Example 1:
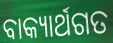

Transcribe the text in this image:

ବାକ୍ୟାର୍ଥଗତ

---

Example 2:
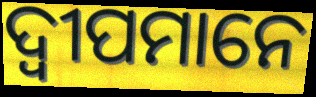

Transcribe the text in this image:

ଦ୍ୱୀପମାନେ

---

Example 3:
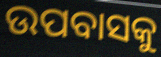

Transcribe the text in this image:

ଉପବାସକୁ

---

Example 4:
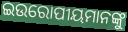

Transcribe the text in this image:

ଇଉରୋପୀୟମାନଙ୍କୁ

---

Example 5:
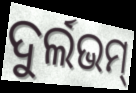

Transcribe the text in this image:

ଦୁର୍ଲଭମ୍